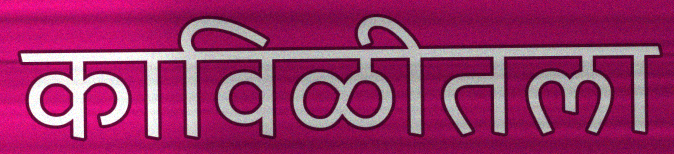
काविळीतला